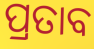
ପ୍ରତାବ